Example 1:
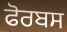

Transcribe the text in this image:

ਫੋਰਬਸ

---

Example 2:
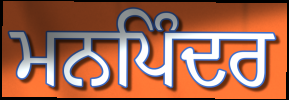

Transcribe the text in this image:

ਮਨਪਿੰਦਰ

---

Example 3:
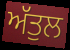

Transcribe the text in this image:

ਅੱਤੁਲ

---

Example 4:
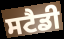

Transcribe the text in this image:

ਸਟੈਡੀ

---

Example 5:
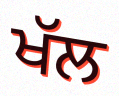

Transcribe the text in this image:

ਖੱਲ